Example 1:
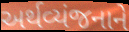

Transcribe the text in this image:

અર્થવ્યંજનાને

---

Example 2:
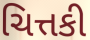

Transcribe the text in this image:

ચિત્તકી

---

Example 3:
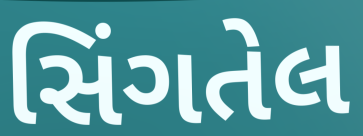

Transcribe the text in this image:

સિંગતેલ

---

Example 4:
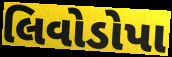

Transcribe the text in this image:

લિવોડોપા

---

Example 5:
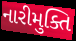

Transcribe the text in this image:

નારીમુક્તિ